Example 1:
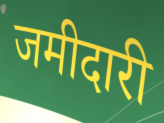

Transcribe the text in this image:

जमीदारी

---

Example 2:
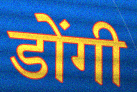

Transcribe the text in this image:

डोंगी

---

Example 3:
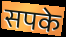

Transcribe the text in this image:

सपके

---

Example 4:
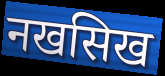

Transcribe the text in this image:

नखसिख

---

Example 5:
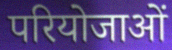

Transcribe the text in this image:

परियोजाओं